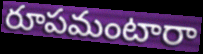
రూపమంటారా